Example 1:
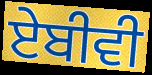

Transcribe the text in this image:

ਏਬੀਵੀ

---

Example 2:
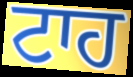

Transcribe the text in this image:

ਟਾਹ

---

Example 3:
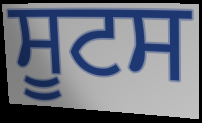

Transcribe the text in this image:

ਸੂਟਸ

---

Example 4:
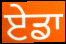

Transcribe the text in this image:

ਏਡਾ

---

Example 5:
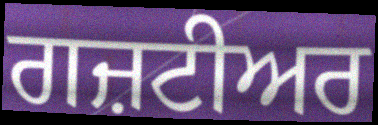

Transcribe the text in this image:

ਗਜ਼ਟੀਅਰ